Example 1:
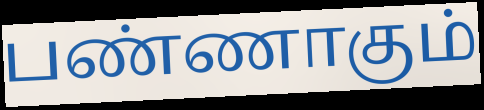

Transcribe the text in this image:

பண்ணாகும்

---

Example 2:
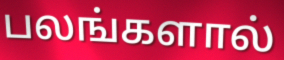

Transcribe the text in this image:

பலங்களால்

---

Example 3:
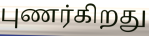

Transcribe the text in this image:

புணர்கிறது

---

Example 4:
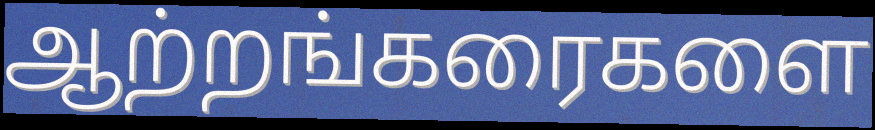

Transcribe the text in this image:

ஆற்றங்கரைகளை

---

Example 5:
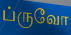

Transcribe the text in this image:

ப்ருவோ